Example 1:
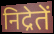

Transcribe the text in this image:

निद्रेतें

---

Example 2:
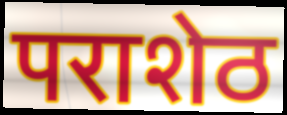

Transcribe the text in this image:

पराशेठ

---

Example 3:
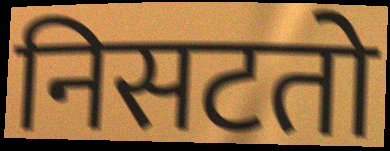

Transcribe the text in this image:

निसटतो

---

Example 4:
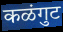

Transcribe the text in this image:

कळंगुट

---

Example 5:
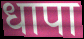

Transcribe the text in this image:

धापा